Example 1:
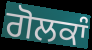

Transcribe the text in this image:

ਗੋਲਕਾੰ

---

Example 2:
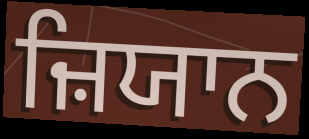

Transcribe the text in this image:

ਜ਼ਿਯਾਨ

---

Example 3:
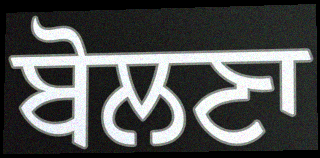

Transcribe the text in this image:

ਬੋਲਣਾ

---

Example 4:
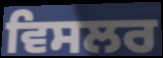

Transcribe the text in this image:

ਵਿਸਲਰ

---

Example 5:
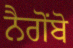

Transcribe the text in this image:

ਨੈਗੋਂਬੋ